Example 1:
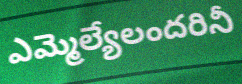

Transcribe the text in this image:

ఎమ్మెల్యేలందరినీ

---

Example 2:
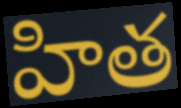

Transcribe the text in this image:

హిత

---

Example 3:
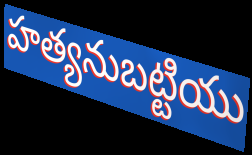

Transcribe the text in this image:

హత్యనుబట్టియు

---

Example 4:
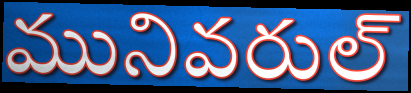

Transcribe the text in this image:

మునివరుల్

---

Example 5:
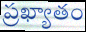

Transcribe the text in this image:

ప్రఖ్యాతం